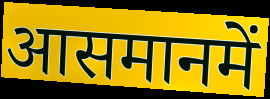
आसमानमें